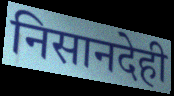
निसानदेही